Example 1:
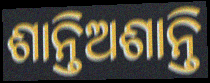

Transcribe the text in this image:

ଶାନ୍ତିଅଶାନ୍ତି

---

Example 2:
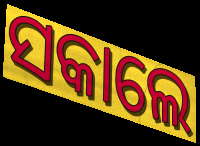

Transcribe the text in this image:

ସକାଲେ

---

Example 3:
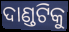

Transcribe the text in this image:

ଦାଣ୍ଡଟିକୁ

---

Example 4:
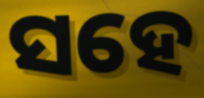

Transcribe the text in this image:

ସହେ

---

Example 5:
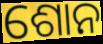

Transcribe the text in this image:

ଶୋନ